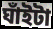
ঘাঁইটা